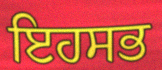
ਇਹਸਭ